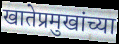
खातेप्रमुखांच्या